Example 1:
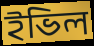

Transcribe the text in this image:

ইভিল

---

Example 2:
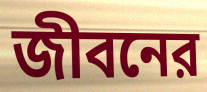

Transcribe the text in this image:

জীবনের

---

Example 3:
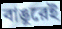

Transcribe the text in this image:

বাঙুরেই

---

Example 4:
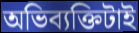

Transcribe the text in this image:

অভিব্যক্তিটাই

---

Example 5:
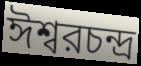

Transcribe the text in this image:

ঈশ্বরচন্দ্র